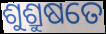
ଶୁଶ୍ରୁଷତେ